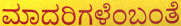
ಮಾದರಿಗಳೆಂಬಂತೆ